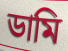
ডামি